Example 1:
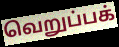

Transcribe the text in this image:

வெறுப்பக்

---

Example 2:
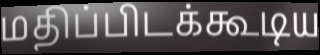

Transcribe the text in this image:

மதிப்பிடக்கூடிய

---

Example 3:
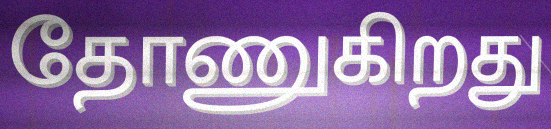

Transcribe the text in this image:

தோணுகிறது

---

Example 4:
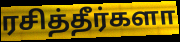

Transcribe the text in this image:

ரசித்தீர்களா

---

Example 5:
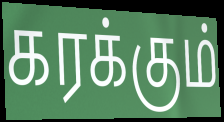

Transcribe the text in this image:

கரக்கும்